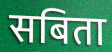
सबिता